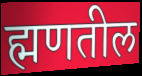
ह्मणतील